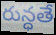
రున్ధతే